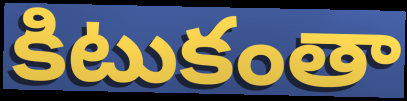
కిటుకంతా